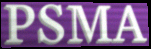
PSMA